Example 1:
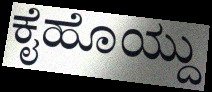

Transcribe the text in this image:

ಕೈಹೊಯ್ದು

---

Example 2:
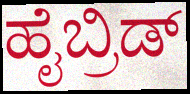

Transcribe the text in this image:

ಹೈಬ್ರಿಡ್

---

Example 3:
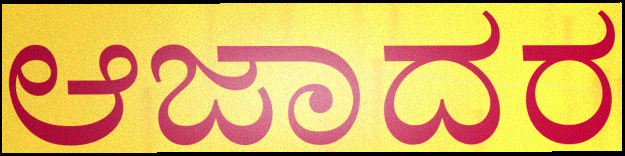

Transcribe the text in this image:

ಆಜಾದರ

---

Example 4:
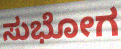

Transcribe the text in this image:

ಸುಭೋಗ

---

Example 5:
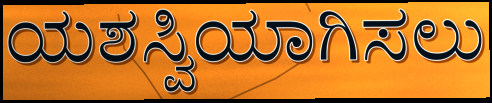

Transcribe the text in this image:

ಯಶಸ್ವಿಯಾಗಿಸಲು